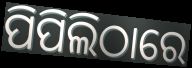
ପିପିଲିଠାରେ